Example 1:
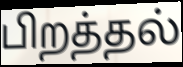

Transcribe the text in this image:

பிறத்தல்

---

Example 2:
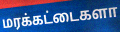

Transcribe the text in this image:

மரக்கட்டைகளா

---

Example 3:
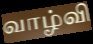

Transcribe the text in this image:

வாழ்வி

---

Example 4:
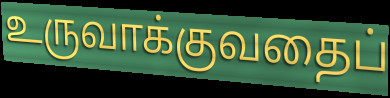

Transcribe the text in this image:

உருவாக்குவதைப்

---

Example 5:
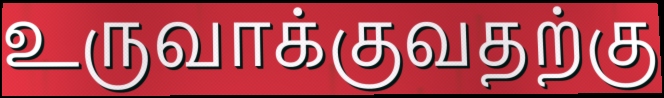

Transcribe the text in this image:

உருவாக்குவதற்கு